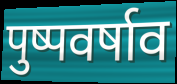
पुष्पवर्षाव